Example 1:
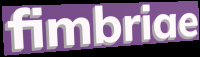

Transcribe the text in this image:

fimbriae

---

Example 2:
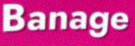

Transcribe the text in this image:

Banage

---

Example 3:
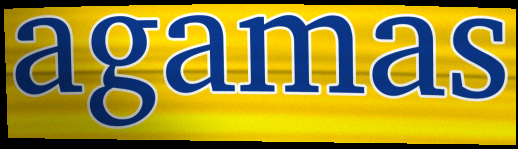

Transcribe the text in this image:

agamas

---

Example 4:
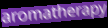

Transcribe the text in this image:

aromatherapy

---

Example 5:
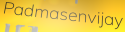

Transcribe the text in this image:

Padmasenvijay